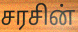
சரசின்